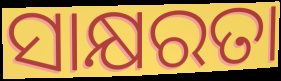
ସାକ୍ଷରତା